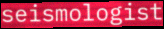
seismologist